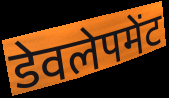
डेवलेपमेंट